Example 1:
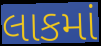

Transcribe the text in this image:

લાકમાં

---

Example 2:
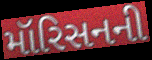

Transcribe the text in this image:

મૉરિસનની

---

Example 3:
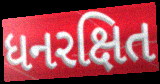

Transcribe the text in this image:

ધનરક્ષિત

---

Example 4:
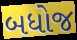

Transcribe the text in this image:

બધોજ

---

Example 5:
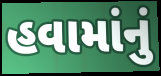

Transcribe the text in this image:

હવામાંનું